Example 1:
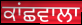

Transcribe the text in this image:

ਕਾਂਛਵਾਲਾ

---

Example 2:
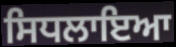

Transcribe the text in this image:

ਸਿਧਲਾਇਆ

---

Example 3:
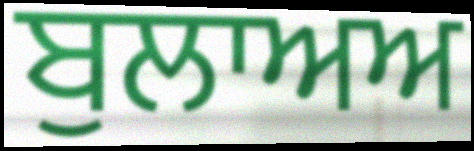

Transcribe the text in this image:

ਬੁਲਾਅਅ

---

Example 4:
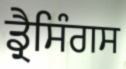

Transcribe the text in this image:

ਡ੍ਰੈਸਿੰਗਸ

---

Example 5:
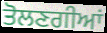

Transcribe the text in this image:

ਤੋਲਣਗੀਆਂ